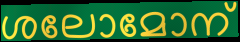
ശലോമോന്